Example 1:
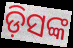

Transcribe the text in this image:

ଡ଼ିସଙ୍କ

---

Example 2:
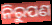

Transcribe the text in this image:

ନିରୁପଣ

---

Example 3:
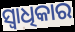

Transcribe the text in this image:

ସ୍ଵାଧିକାର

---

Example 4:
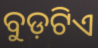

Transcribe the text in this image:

ବୁଡ଼ଟିଏ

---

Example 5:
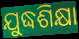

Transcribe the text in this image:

ଯୁଦ୍ଧଶିକ୍ଷା